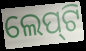
ଲେପ୍‍ଟି